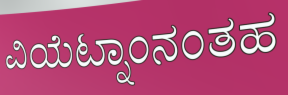
ವಿಯೆಟ್ನಾಂನಂತಹ